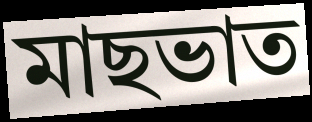
মাছভাত